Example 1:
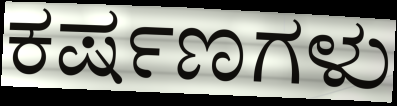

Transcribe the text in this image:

ಕರ್ಷಣಗಳು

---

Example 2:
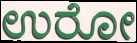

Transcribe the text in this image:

ಉರೋ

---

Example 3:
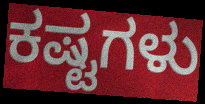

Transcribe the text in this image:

ಕಷ್ಟಗಳು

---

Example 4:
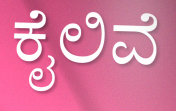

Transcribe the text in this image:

ಕೈಲಿವೆ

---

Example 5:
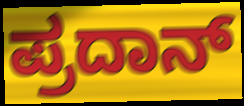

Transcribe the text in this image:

ಪ್ರದಾನ್